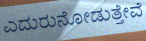
ಎದುರುನೋಡುತ್ತೇವೆ